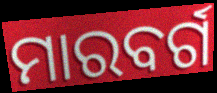
ମାରବର୍ଗ